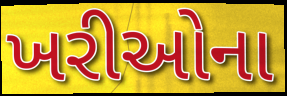
ખરીઓના